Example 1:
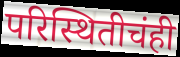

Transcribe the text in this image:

परिस्थितीचंही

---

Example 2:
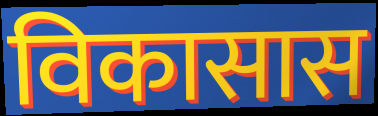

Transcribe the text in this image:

विकासास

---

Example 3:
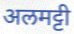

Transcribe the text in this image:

अलमट्टी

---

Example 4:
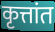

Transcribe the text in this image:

कृत्तांत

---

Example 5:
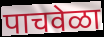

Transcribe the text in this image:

पाचवेळा